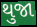
થુજા